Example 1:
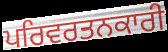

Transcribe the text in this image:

ਪਰਿਵਰਤਨਕਾਰੀ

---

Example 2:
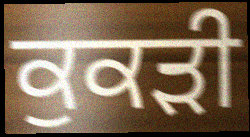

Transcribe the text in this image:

ਕੁਕੜੀ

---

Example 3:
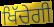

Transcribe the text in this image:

ਖਿੱਚੇਗੀ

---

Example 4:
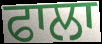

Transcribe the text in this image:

ਫਾਲਾ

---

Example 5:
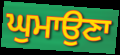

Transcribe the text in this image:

ਘੁਮਾਉਣਾ